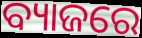
ବ୍ୟାଜରେ